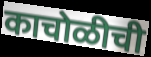
काचोळीची